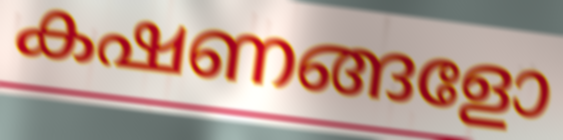
കഷണങ്ങളോ